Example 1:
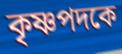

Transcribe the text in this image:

কৃষ্ণপদকে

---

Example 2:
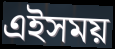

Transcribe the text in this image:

এইসময়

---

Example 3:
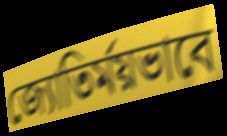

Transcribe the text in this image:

জ্যোতির্ময়ভাবে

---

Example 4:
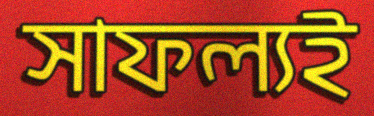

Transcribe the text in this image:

সাফল্যই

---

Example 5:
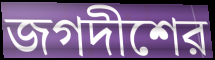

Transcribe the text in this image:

জগদীশের